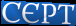
CEPT